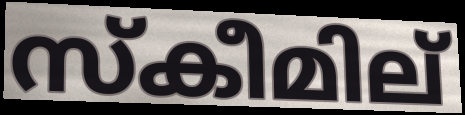
സ്കീമില്